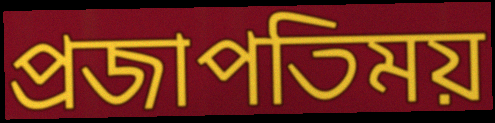
প্রজাপতিময়